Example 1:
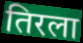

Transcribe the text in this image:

तिरला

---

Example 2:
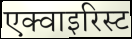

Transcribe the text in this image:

एक्वाइरिस्ट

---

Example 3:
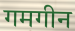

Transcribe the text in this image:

गमगीन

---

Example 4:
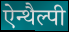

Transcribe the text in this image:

ऐन्थैल्पी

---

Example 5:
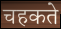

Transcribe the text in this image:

चहकते